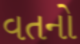
વતનો